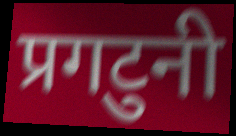
प्रगटुनी